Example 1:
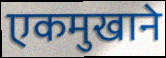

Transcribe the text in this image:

एकमुखाने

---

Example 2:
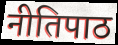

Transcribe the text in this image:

नीतिपाठ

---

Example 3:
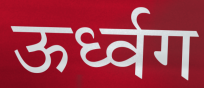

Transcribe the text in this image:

ऊर्ध्वग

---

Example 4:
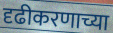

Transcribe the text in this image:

दृढीकरणाच्या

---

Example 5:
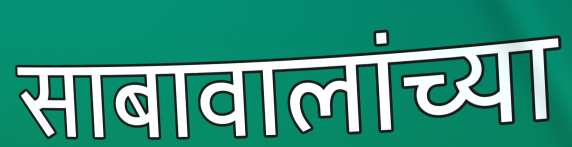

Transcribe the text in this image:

साबावालांच्या